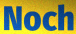
Noch